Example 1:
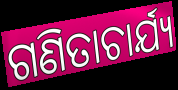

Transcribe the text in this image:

ଗଣିତାଚାର୍ଯ୍ୟ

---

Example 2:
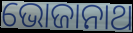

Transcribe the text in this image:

ଭୋଜାନାଥ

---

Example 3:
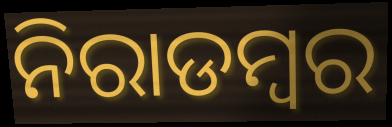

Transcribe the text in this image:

ନିରାଡମ୍ଵର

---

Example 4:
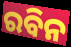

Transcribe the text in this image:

ରବିନ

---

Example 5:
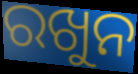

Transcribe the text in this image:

ରଖୁନ